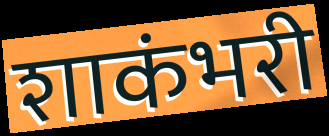
शाकंभरी